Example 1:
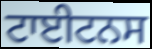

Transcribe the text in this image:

ਟਾਈਟਨਸ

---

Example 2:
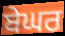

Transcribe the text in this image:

ਬੇਘਰ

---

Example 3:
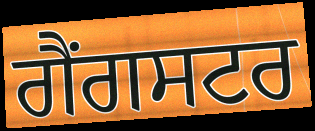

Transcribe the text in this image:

ਗੈਂਗਸਟਰ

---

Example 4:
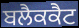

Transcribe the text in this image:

ਬਲੈਕਕੈਟ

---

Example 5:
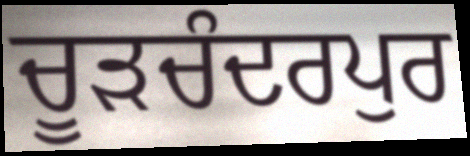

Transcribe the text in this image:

ਚੂੜਚੰਦਰਪੁਰ